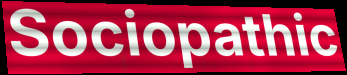
Sociopathic